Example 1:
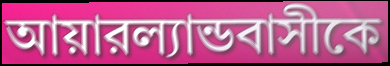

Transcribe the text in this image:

আয়ারল্যান্ডবাসীকে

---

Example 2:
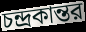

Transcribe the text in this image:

চন্দ্রকান্তর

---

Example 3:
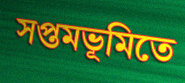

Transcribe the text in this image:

সপ্তমভূমিতে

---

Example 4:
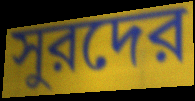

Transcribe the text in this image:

সুরদের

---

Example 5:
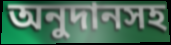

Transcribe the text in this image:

অনুদানসহ